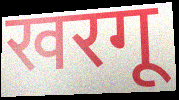
खरगू